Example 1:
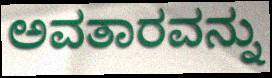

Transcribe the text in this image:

ಅವತಾರವನ್ನು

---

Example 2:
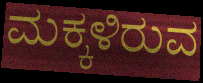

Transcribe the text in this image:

ಮಕ್ಕಳಿರುವ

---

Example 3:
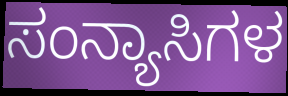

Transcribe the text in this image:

ಸಂನ್ಯಾಸಿಗಳ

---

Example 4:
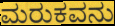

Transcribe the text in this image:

ಮರುಕವನು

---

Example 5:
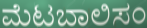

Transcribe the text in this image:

ಮೆಟಬಾಲಿಸಂ